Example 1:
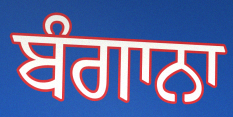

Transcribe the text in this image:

ਬੰਗਾਨਾ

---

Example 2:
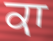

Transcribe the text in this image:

ਕਾ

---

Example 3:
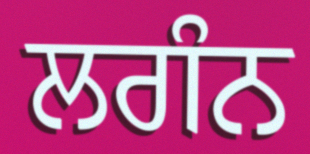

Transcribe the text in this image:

ਲਗੰਨ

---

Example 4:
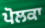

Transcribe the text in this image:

ਪੋਲਕਾ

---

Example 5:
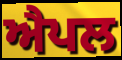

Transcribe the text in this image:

ਐਪਲ